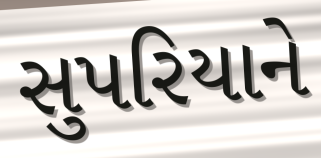
સુપરિયાને